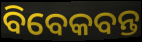
ବିବେକବନ୍ତ